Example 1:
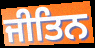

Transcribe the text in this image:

ਜੀਤਿਨ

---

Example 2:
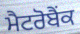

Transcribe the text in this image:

ਮੈਟਰੋਬੈਂਕ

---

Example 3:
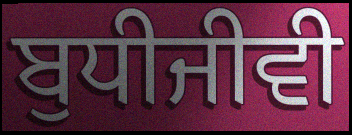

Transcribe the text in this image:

ਬੁਧੀਜੀਵੀ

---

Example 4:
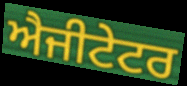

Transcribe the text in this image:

ਐਜੀਟੇਟਰ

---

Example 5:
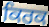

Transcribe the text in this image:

ਕਿਰਕ